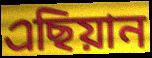
এছিয়ান